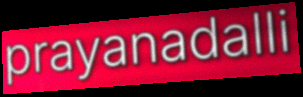
prayanadalli